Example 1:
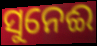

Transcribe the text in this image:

ସୁନେଈ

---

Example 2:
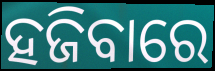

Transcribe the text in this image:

ହଜିବାରେ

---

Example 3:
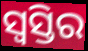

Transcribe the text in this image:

ସ୍ଵସ୍ତିର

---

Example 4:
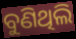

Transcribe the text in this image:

ବୁଣିଥିଲି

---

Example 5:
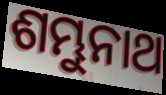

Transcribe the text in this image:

ଶମ୍ଭୁନାଥ